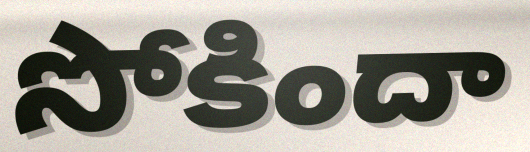
సోకిందా